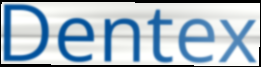
Dentex